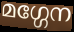
മഗ്ഗേന